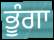
ਭੂੰਗਾ